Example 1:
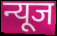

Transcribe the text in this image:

न्‍यूज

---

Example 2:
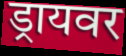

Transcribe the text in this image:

ड्रायवर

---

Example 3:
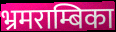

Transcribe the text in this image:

भ्रमराम्बिका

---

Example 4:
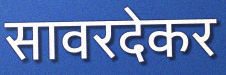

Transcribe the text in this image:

सावरदेकर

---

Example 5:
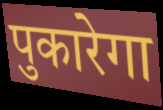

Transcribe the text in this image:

पुकारेगा